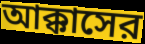
আক্কাসের